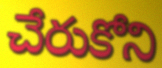
చేరుకోని